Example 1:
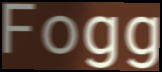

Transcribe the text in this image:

Fogg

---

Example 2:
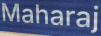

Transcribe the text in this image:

Maharaj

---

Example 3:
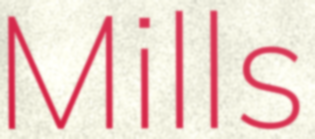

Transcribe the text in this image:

Mills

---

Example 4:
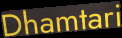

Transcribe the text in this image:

Dhamtari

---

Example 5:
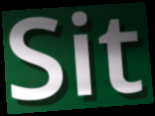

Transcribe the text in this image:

Sit